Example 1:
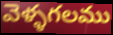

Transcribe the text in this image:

వెళ్ళగలము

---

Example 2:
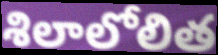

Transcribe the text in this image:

శిలాలోలిత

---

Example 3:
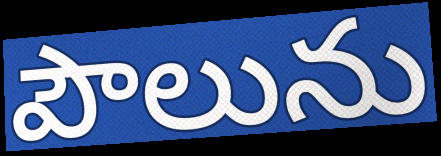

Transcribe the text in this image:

పౌలును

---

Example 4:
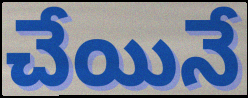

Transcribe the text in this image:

చేయినే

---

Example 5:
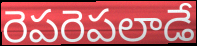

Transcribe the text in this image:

రెపరెపలాడే